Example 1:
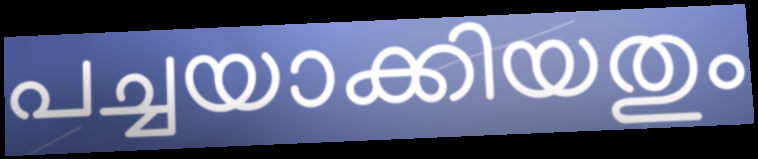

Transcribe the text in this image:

പച്ചയാക്കിയതും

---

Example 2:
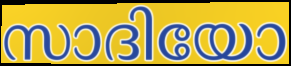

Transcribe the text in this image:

സാദിയോ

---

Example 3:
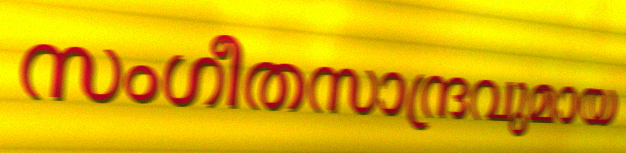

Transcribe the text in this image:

സംഗീതസാന്ദ്രവുമായ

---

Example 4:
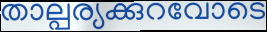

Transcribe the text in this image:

താല്പര്യക്കുറവോടെ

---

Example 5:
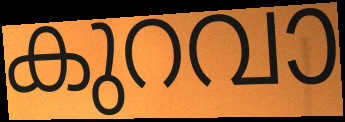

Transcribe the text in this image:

കുറവാ